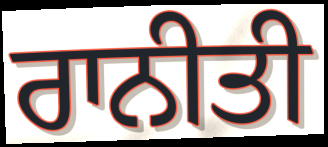
ਰਾਨੀਤੀ